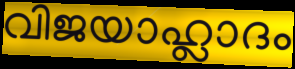
വിജയാഹ്ലാദം